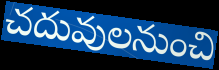
చదువులనుంచి